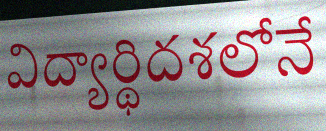
విద్యార్థిదశలోనే